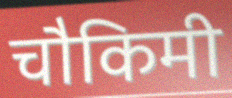
चौकिमी